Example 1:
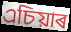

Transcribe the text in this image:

এচিয়াৰ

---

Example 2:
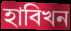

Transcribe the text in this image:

হাবিখন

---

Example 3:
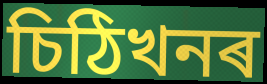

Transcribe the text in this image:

চিঠিখনৰ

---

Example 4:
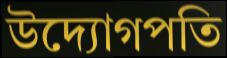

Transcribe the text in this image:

উদ্যোগপতি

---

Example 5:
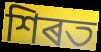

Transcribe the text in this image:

শিৰত